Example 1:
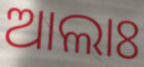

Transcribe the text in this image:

ଆଲାଃ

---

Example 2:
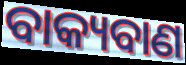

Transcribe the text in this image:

ବାକ୍ୟବାଣ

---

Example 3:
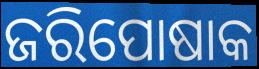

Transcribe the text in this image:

ଜରିପୋଷାକ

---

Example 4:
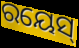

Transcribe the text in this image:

ରୟେସ୍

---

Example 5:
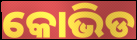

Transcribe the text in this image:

କୋଭିଡ